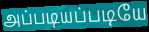
அப்படியப்படியே